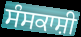
ਸੰਸਕਾਸ਼ੀ